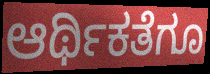
ಆರ್ಥಿಕತೆಗೂ